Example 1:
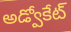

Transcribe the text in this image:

అడ్వోకేట్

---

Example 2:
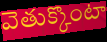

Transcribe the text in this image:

వెతుక్కొంటా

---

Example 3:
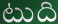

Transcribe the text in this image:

టుది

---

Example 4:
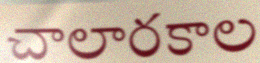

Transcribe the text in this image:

చాలారకాల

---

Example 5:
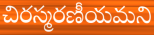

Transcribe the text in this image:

చిరస్మరణీయమని